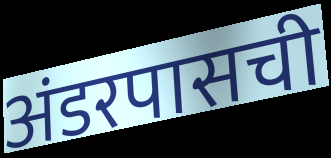
अंडरपासची